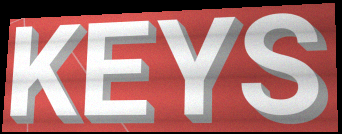
KEYS